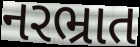
નરભ્રાત